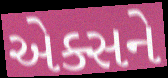
એક્સને